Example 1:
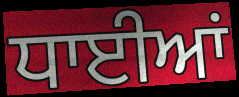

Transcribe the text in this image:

ਧਾਈਆਂ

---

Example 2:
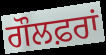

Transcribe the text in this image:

ਗੌਲਫ਼ਰਾਂ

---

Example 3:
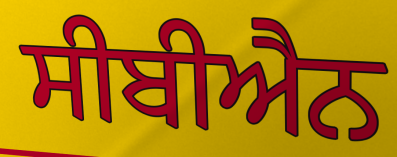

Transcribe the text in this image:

ਸੀਬੀਐਨ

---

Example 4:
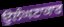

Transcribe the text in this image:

ਉਲੰਘਣਾਕਾਰ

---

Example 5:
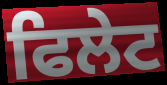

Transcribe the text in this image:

ਫਿਲੇਟ